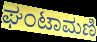
ಘಂಟಾಮಣಿ